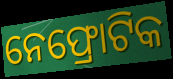
ନେଫ୍ରୋଟିକ